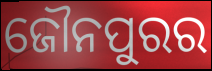
ଜୌନପୁରର